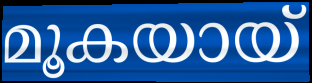
മൂകയായ്